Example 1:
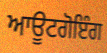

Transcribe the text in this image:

ਆਊਟਗੋਇੰਗ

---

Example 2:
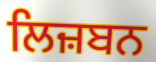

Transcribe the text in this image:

ਲਿਜ਼ਬਨ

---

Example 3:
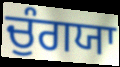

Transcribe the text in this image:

ਚੁੰਗਯਾ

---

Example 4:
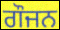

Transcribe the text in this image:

ਗੌਜਨ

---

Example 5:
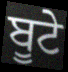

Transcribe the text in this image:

ਬੂਟੇ